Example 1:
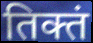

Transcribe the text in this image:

तिक्तं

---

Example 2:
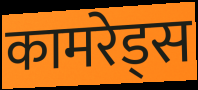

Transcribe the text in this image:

कामरेड्स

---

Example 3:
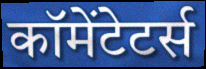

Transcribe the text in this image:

कॉमेंटेटर्स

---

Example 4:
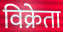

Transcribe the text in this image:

विक्रेता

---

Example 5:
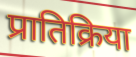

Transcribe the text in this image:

प्रातिक्रिया